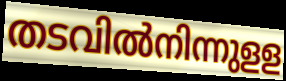
തടവിൽനിന്നുളള